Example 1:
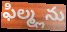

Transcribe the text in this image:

ఫిల్మ్లను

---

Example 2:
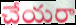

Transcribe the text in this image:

చేయరా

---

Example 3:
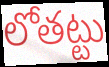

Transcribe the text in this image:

లోతట్టు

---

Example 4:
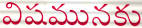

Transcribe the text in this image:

విషమునకు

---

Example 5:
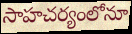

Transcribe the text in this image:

సాహచర్యంలోనూ